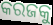
କରଜକୁ